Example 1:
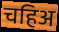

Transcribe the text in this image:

चहिअ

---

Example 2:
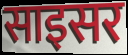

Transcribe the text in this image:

साइसर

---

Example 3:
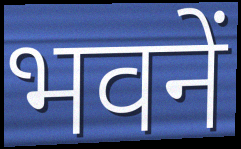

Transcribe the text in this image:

भवनें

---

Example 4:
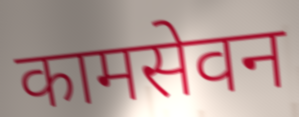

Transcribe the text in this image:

कामसेवन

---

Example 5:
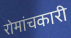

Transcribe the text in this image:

रोमांचकारी